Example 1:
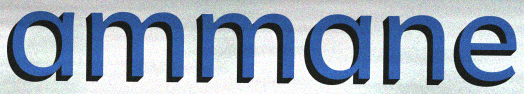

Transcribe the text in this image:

ammane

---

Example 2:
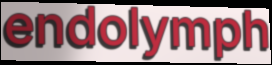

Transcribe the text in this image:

endolymph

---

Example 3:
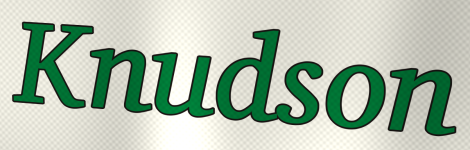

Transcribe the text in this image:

Knudson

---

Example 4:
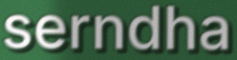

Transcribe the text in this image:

serndha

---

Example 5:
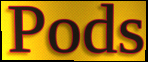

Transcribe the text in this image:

Pods